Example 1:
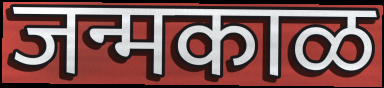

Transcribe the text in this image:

जन्मकाळ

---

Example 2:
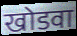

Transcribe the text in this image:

खोडवा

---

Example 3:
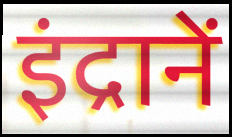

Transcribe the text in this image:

इंद्रानें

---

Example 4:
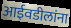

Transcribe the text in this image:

आईवडीलांना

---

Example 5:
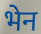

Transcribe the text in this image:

भेन